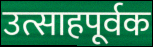
उत्साहपूर्वक